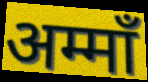
अम्माँ